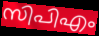
സിപിഎം